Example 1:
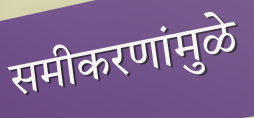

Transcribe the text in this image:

समीकरणांमुळे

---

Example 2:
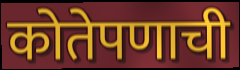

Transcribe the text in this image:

कोतेपणाची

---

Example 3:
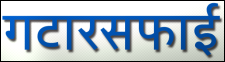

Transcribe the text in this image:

गटारसफाई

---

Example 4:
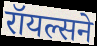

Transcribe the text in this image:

रॉयल्सने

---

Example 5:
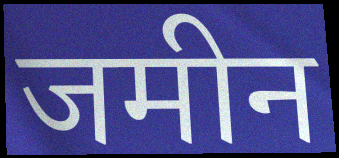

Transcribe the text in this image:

जमीन